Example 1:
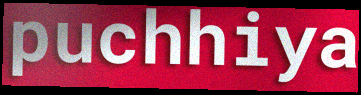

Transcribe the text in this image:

puchhiya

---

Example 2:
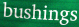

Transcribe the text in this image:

bushings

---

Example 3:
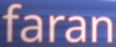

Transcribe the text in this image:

faran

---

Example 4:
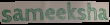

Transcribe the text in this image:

sameeksha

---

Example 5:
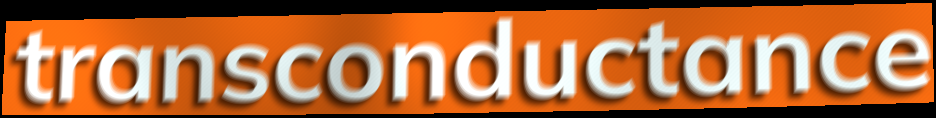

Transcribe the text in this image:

transconductance